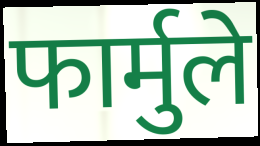
फार्मुले